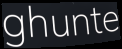
ghunte